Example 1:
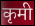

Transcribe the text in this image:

कृमी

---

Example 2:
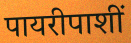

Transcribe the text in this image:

पायरीपाशीं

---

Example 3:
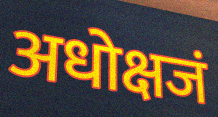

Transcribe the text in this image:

अधोक्षजं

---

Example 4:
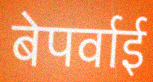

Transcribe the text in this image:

बेपर्वाई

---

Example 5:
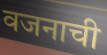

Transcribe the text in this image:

वजनाची